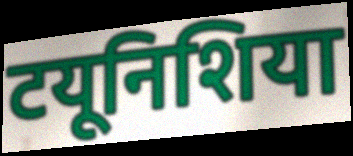
टयूनिशिया